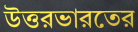
উত্তরভারতের